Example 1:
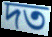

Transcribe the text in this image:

দত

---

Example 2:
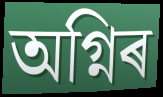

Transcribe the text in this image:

অগ্নিৰ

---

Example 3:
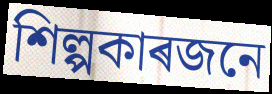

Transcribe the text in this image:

শিল্পকাৰজনে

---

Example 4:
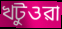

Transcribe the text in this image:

খটুওৱা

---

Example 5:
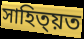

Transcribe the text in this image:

সাহিত্য়ত